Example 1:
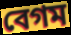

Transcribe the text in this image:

বেগম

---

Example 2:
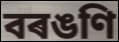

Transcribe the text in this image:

বৰঙণি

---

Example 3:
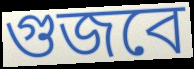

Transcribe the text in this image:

গুজবে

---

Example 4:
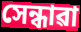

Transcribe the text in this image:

সেন্ধাৱা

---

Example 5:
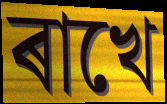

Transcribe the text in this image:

ৰাখে